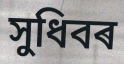
সুধিবৰ